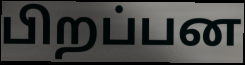
பிறப்பன